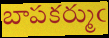
బాపకర్ముఁ